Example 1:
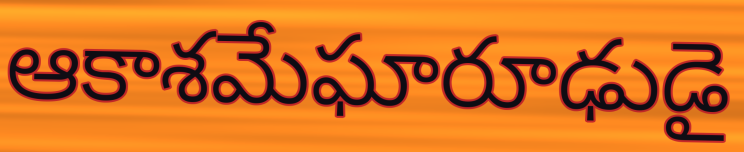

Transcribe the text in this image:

ఆకాశమేఘారూఢుడై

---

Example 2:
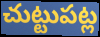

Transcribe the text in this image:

చుట్టుపట్ల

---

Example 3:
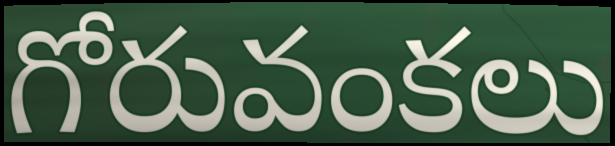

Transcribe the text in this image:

గోరువంకలు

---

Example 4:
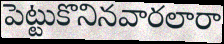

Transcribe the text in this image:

పెట్టుకొనినవారలారా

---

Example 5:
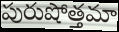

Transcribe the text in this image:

పురుషోత్తమా